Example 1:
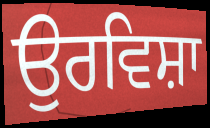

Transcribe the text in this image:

ਉਰਵਿਸ਼ਾ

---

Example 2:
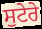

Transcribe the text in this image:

ਸੁਟੇਰੇ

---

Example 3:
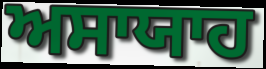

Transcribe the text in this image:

ਅਸਾਯਾਹ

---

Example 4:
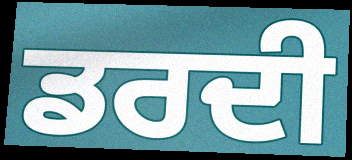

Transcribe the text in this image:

ਡਰਦੀ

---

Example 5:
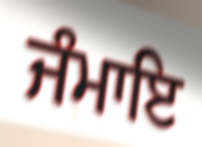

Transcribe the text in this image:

ਜੰਮਾਇ